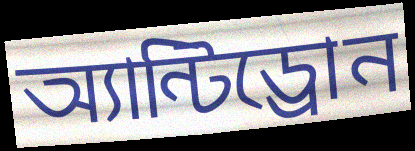
অ্যান্টিড্রোন